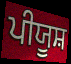
ਪੀਯੂਸ਼